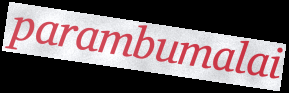
parambumalai